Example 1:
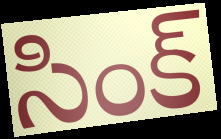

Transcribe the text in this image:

సింక్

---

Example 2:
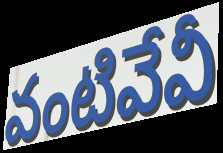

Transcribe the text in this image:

వంటివేవీ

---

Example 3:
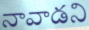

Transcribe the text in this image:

నావాడని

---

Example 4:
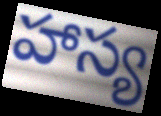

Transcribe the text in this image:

హాస్య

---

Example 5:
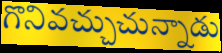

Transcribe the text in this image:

గొనివచ్చుచున్నాడు